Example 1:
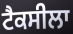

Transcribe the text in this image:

ਟੈਕਸੀਲਾ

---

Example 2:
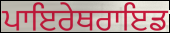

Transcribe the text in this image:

ਪਾਇਰੇਥਰਾਇਡ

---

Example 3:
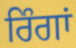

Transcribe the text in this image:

ਰਿੰਗਾਂ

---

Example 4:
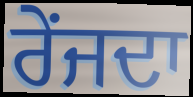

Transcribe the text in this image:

ਰੇਂਜਦਾ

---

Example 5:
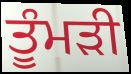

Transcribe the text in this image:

ਤੂੰਮੜੀ